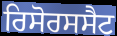
ਰਿਸੋਰਸਸੈਟ